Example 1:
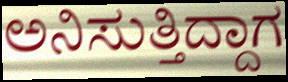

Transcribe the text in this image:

ಅನಿಸುತ್ತಿದ್ದಾಗ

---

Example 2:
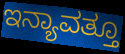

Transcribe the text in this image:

ಇನ್ಯಾವತ್ತೂ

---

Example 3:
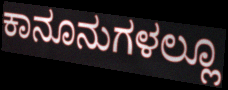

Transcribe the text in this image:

ಕಾನೂನುಗಳಲ್ಲೂ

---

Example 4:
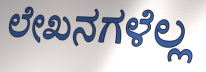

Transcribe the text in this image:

ಲೇಖನಗಳೆಲ್ಲ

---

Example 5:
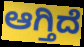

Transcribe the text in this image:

ಆಗ್ತಿದೆ